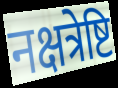
नक्षत्रेष्टि